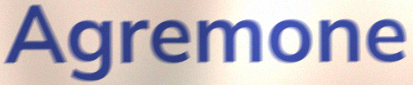
Agremone